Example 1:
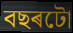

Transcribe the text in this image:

বছৰটো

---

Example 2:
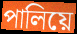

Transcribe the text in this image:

পালিয়ে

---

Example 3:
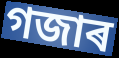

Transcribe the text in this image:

গজাৰ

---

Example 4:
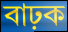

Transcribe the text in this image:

বাঢ়ক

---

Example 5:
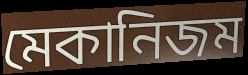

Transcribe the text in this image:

মেকানিজম